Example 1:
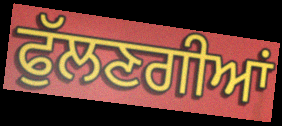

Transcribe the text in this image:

ਫੁੱਲਣਗੀਆਂ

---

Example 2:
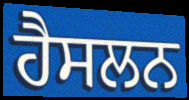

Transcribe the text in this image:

ਹੈਸਲਨ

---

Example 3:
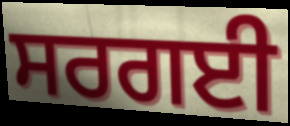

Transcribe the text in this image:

ਸਰਗਈ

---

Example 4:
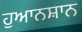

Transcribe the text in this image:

ਹੁਆਨਸ਼ਾਨ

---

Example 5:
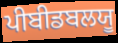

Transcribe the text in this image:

ਪੀਬੀਡਬਲਯੂ